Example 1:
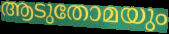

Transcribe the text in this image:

ആടുതോമയും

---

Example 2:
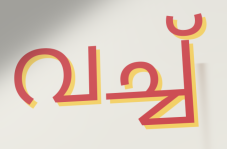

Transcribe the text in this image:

വച്ച്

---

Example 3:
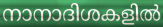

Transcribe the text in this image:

നാനാദിശകളിൽ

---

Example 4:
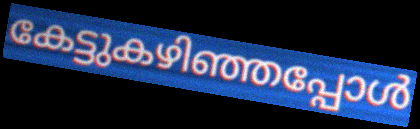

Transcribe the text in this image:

കേട്ടുകഴിഞ്ഞപ്പോൾ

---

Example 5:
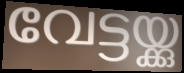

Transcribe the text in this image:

വേട്ടയ്ക്കു